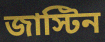
জাস্টিন